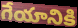
గేయానికి